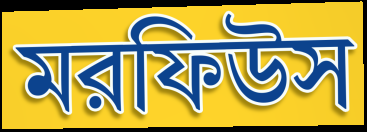
মরফিউস